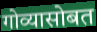
गोव्यासोबत